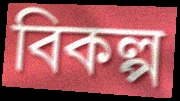
বিকল্প